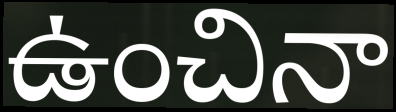
ఉంచినా